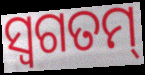
ସ୍ୱଗତମ୍